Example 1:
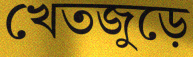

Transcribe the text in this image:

খেতজুড়ে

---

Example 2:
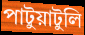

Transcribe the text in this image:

পাটুয়াটুলি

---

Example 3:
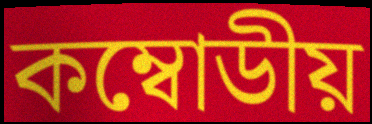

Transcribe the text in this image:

কম্বোডীয়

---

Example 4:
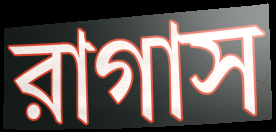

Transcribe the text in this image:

রাগাস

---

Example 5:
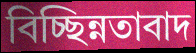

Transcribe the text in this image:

বিচ্ছিন্নতাবাদ